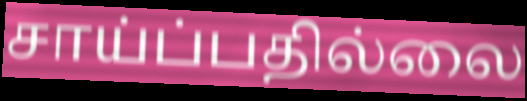
சாய்ப்பதில்லை